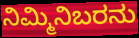
ನಿಮ್ಮಿನಿಬರನು